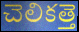
చెలికత్తె